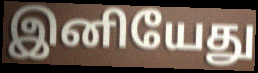
இனியேது